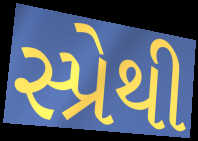
સ્પ્રેથી